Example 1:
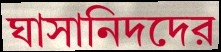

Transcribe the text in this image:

ঘাসানিদদের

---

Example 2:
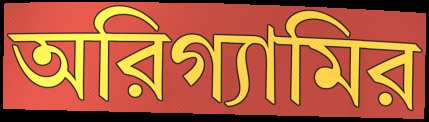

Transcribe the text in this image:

অরিগ্যামির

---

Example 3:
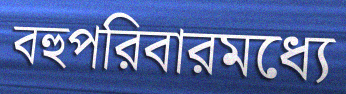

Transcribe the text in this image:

বহুপরিবারমধ্যে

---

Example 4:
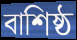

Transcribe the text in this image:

বাশিষ্ঠ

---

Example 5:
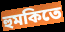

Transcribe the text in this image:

হুমকিতে